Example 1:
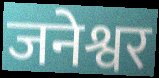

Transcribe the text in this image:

जनेश्वर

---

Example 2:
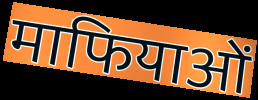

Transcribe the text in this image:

माफियाओं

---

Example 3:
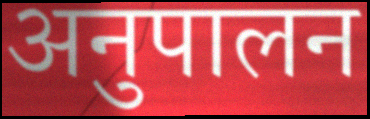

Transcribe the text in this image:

अनुपालन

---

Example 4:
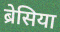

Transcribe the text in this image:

ब्रेसिया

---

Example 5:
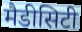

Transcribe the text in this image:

मैडीसिटी